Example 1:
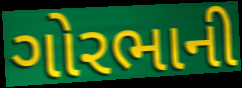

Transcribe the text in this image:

ગોરભાની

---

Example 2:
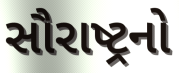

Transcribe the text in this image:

સૌરાષ્ટ્રનો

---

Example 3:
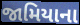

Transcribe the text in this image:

જામિયાના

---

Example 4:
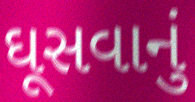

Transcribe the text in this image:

ઘૂસવાનું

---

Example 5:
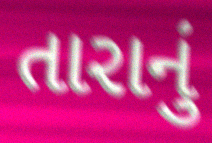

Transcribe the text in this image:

તારાનું